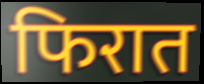
फिरात